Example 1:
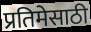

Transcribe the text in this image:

प्रतिमेसाठी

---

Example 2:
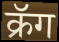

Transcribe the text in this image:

क्रॅग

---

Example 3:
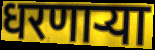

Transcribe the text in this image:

धरणाऱ्या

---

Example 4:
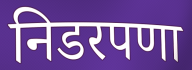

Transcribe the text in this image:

निडरपणा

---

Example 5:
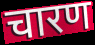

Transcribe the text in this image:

चारण